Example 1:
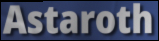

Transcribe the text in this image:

Astaroth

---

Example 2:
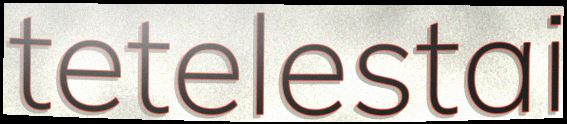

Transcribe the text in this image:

tetelestai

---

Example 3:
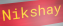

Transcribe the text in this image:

Nikshay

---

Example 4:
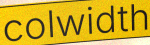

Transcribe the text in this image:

colwidth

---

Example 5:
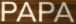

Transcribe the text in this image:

PAPA